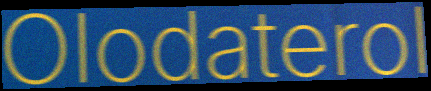
Olodaterol